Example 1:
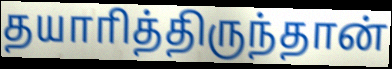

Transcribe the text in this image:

தயாரித்திருந்தான்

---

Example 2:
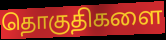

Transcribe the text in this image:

தொகுதிகளை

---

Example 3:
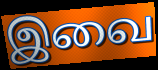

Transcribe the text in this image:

இவை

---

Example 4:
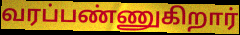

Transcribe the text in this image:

வரப்பண்ணுகிறார்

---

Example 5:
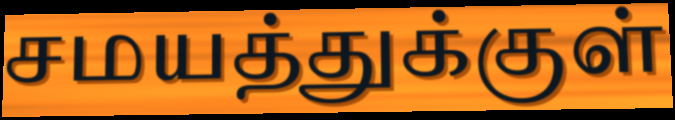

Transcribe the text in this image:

சமயத்துக்குள்